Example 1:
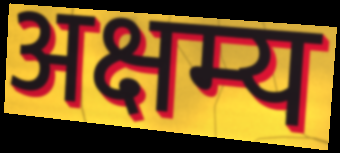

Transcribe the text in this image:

अक्षम्य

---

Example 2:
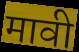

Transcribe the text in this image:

मावी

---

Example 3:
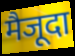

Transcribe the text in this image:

मैजूदा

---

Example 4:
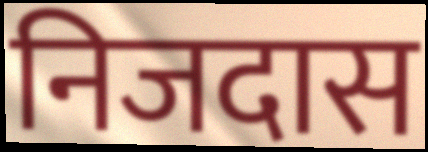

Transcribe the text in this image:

निजदास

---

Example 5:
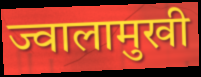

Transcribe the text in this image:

ज्वालामुखी